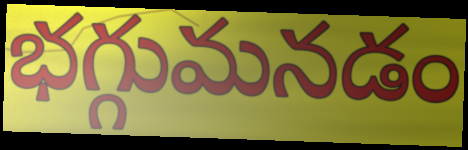
భగ్గుమనడం